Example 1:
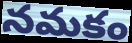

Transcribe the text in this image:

నమకం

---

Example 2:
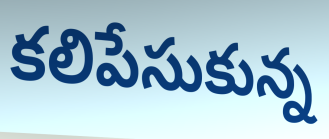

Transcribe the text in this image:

కలిపేసుకున్న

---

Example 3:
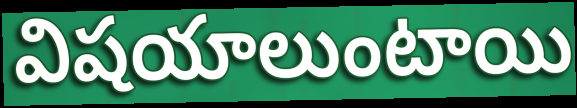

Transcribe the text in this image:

విషయాలుంటాయి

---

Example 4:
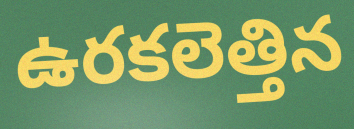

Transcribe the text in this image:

ఉరకలెత్తిన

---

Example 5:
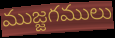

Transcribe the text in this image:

ముజ్జగములు